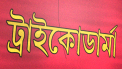
ট্রাইকোডার্মা